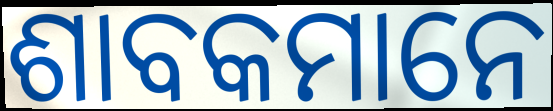
ଶାବକମାନେ